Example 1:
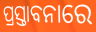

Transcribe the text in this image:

ପ୍ରସ୍ତାବନାରେ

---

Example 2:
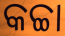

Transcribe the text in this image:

କଚ୍ଚା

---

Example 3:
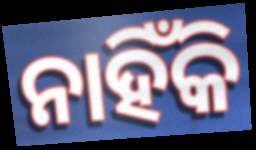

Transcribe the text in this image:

ନାହିଁକି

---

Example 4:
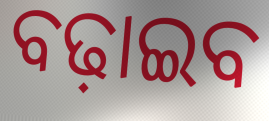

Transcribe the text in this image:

ବଢ଼ାଇବ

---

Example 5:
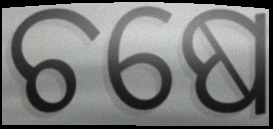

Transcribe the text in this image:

ଚଷେ